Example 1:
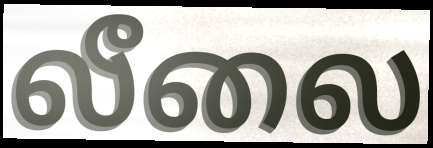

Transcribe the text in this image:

லீலை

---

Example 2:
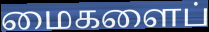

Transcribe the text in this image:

மைகளைப்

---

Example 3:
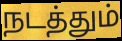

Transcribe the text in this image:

நடத்தும்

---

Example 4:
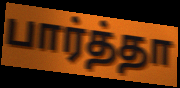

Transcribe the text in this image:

பார்த்தா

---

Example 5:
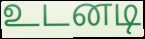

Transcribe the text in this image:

உடனடி